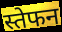
स्तेफन